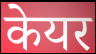
केयर